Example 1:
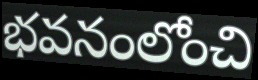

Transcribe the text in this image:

భవనంలోంచి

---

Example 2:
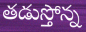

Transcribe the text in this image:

తడుస్తోన్న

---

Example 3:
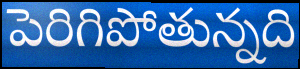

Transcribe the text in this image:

పెరిగిపోతున్నది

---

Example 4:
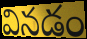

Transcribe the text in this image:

వినడం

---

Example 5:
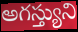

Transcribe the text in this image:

అగస్త్యుని